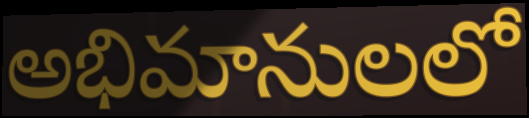
అభిమానులలో